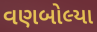
વણબોલ્યા